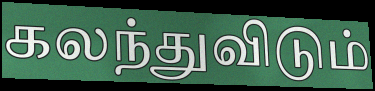
கலந்துவிடும்